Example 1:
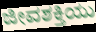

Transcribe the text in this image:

ಜೀವಶಕ್ತಿಯು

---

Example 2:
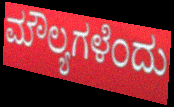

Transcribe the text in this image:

ಮೌಲ್ಯಗಳೆಂದು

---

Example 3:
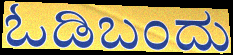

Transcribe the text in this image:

ಓಡಿಬಂದು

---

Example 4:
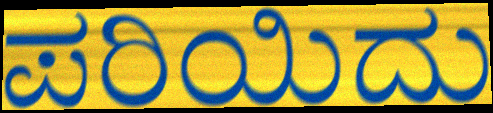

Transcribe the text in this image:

ಪರಿಯಿದು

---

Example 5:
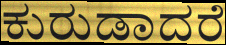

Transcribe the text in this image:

ಕುರುಡಾದರೆ